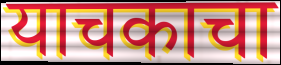
याचकाचा